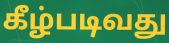
கீழ்படிவது